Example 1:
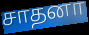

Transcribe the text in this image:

சாதனா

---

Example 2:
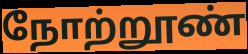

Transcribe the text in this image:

நோற்றூண்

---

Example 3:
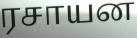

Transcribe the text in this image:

ரசாயன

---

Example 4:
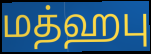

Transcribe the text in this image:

மத்ஹபு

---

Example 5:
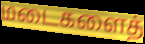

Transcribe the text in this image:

மடைகளைத்